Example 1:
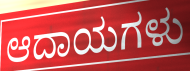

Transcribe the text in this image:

ಆದಾಯಗಳು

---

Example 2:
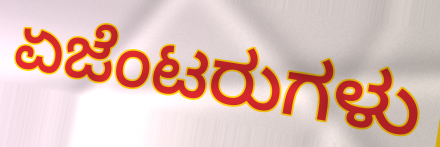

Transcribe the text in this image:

ಏಜೆಂಟರುಗಳು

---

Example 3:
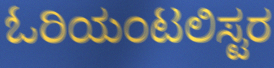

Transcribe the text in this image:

ಓರಿಯಂಟಲಿಸ್ಟರ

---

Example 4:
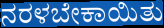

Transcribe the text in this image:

ನರಳಬೇಕಾಯಿತು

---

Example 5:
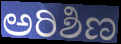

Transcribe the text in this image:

ಅರಿಶಿಣ